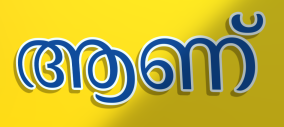
ആണ്